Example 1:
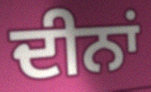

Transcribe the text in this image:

ਦੀਨਾਂ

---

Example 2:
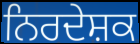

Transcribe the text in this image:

ਨਿਰਦੇਸ਼ਕ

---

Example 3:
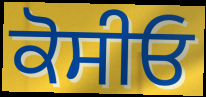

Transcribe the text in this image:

ਕੋਸੀਓ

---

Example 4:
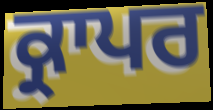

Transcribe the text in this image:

ਕ੍ਰਾਪਰ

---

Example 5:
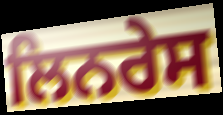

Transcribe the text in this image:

ਲਿਨਰੇਸ